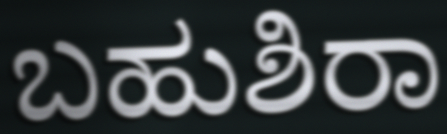
ಬಹುಶಿರಾ